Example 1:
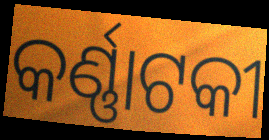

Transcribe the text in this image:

କର୍ଣ୍ଣାଟକୀ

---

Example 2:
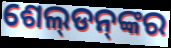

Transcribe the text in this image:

ଶେଲ୍‌ଡନ୍‌ଙ୍କର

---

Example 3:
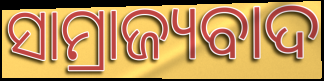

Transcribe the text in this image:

ସାମ୍ରାଜ୍ୟବାଦ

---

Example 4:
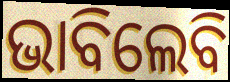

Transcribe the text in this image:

ଭାବିଲେବି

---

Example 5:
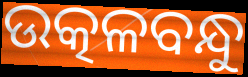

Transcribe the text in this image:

ଉତ୍କଳବନ୍ଧୁ